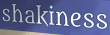
shakiness